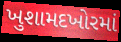
ખુશામદખોરમાં